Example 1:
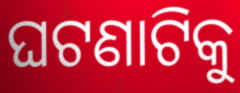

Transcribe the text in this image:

ଘଟଣାଟିକୁ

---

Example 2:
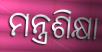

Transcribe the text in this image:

ମନ୍ତ୍ରଶିକ୍ଷା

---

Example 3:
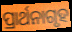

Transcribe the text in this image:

ପ୍ରାର୍ଥନାଗୃହ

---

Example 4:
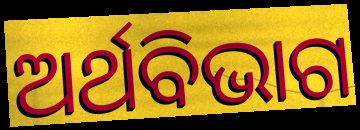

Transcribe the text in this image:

ଅର୍ଥବିଭାଗ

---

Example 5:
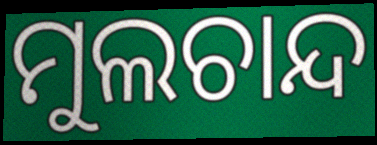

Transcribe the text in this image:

ମୁଲଚାନ୍ଦ